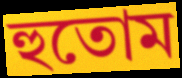
হুতোম